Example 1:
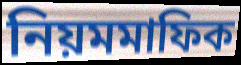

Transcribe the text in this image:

নিয়মমাফিক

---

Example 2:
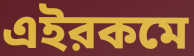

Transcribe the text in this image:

এইরকমে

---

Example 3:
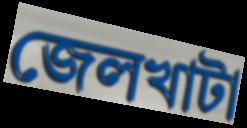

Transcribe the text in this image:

জেলখাটা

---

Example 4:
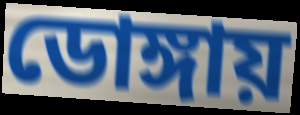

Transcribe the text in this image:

ডোঙ্গায়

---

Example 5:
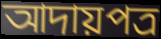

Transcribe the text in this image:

আদায়পত্র